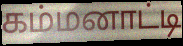
கம்மனாட்டி